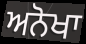
ਅਨੋਖਾ